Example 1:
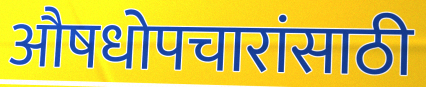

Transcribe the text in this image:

औषधोपचारांसाठी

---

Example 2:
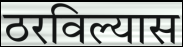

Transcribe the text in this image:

ठरविल्यास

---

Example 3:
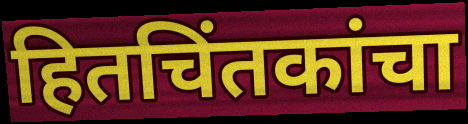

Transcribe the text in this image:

हितचिंतकांचा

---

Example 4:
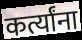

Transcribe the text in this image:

कर्त्यांना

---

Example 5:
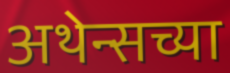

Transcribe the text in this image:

अथेन्सच्या